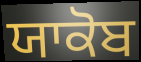
ਯਾਕੋਬ